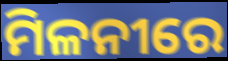
ମିଳନୀରେ